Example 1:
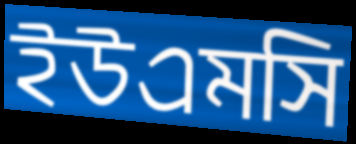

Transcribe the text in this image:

ইউএমসি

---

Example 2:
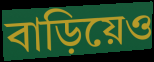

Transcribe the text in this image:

বাড়িয়েও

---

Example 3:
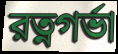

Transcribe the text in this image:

রত্নগর্ভা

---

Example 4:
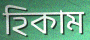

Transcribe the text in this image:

হিকাম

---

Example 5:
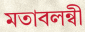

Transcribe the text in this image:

মতাবলন্বী